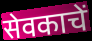
सेवकाचें